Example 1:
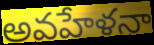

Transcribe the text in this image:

అవహేళనా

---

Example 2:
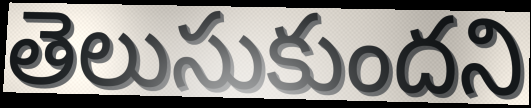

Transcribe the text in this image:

తెలుసుకుందని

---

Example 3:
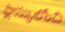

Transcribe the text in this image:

ఫ్లాస్కులోంచి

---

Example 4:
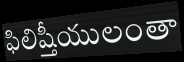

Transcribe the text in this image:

ఫిలిష్తీయులంతా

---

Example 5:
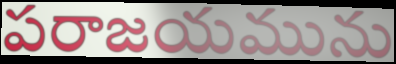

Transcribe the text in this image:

పరాజయమును